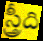
స్త్రీది